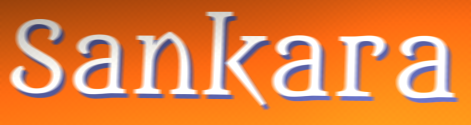
Sankara